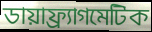
ডায়াফ্র্যাগমেটিক